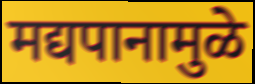
मद्यपानामुळे